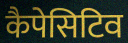
कैपेसिटिव